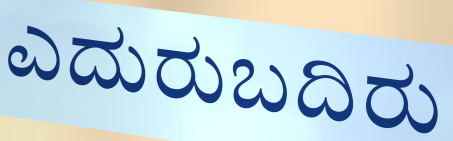
ಎದುರುಬದಿರು